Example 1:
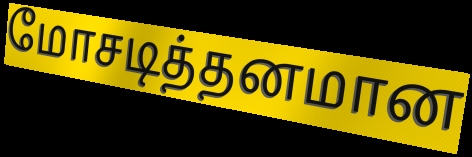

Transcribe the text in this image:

மோசடித்தனமான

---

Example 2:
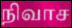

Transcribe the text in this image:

நிவாச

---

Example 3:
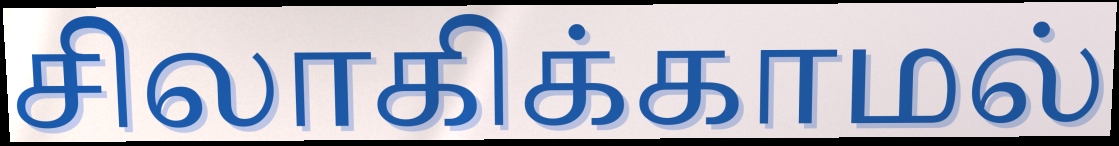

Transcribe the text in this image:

சிலாகிக்காமல்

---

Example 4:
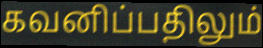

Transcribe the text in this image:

கவனிப்பதிலும்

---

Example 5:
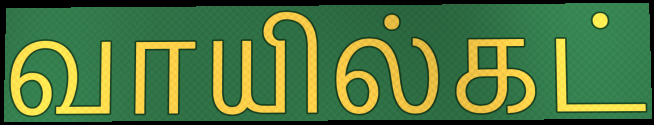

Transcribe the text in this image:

வாயில்கட்